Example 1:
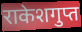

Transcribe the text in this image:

राकेशगुप्त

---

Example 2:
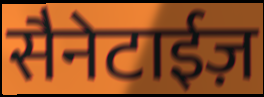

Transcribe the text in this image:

सैनेटाईज़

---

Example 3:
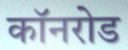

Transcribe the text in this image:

कॉनरोड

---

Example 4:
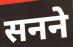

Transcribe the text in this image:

सनने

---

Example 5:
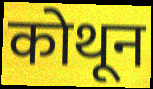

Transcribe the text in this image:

कोथून